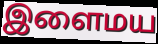
இளைமய